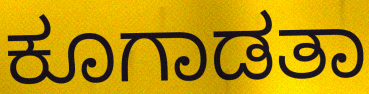
ಕೂಗಾಡತಾ